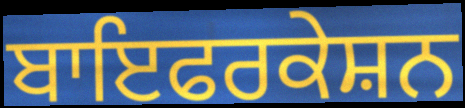
ਬਾਇਫਰਕੇਸ਼ਨ